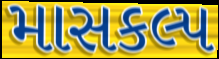
માસકલ્પ